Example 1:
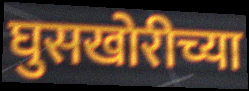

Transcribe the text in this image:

घुसखोरीच्या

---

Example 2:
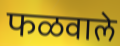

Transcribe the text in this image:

फळवाले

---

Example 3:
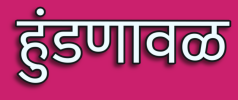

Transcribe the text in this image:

हुंडणावळ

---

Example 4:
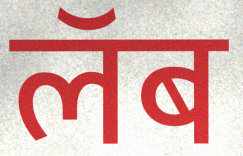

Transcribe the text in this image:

लॅब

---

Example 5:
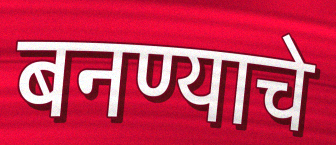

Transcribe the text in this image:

बनण्याचे